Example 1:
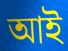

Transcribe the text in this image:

আই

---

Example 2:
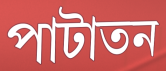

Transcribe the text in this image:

পাটাতন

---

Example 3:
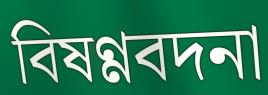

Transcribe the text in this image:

বিষণ্ণবদনা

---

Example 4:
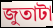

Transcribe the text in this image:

জুতাটা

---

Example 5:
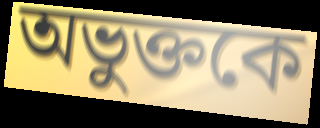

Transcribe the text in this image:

অভুক্তকে